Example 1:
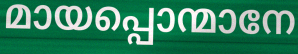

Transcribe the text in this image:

മായപ്പൊന്മാനേ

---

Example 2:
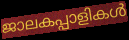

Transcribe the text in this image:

ജാലകപ്പാളികൾ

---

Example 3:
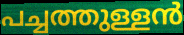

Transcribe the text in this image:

പച്ചത്തുള്ളൻ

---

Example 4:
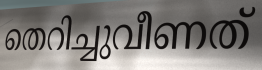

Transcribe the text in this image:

തെറിച്ചുവീണത്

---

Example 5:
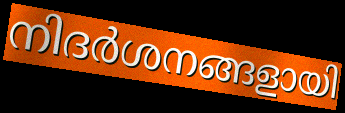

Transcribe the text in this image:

നിദർശനങ്ങളായി